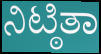
ನಿಟ್ಠಿತಾ